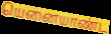
யெனையாண்ட